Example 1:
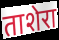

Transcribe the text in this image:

ताशेरा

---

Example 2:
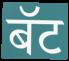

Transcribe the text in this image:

बॅट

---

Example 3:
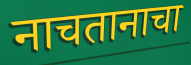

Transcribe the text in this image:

नाचतानाचा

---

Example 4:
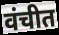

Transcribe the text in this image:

वंचीत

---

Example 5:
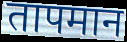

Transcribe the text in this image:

तापमान